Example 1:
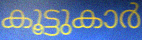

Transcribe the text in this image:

കൂട്ടുകാർ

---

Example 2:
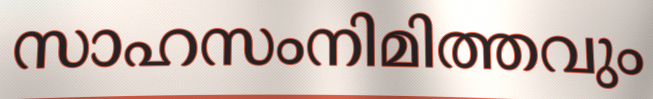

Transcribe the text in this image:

സാഹസംനിമിത്തവും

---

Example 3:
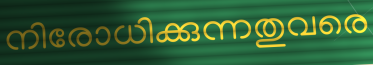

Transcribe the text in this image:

നിരോധിക്കുന്നതുവരെ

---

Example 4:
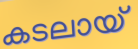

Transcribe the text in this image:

കടലായ്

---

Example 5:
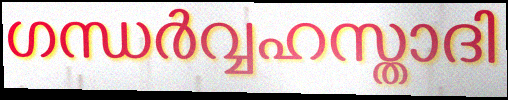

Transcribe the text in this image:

ഗന്ധർവ്വഹസ്താദി